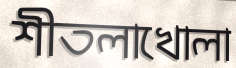
শীতলাখোলা